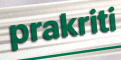
prakriti